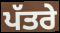
ਪੱਤਰੇ